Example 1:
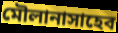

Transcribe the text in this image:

মৌলানাসাহেব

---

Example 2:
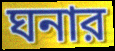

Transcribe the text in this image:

ঘনার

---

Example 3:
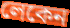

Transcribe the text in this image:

লেকেন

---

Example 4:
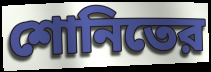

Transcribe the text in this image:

শোনিতের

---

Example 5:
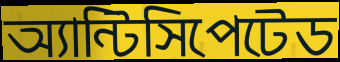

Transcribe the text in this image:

অ্যান্টিসিপেটেড